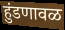
हुंडणावळ